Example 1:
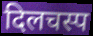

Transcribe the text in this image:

दिलचस्प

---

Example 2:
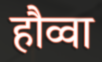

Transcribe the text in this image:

हौव्वा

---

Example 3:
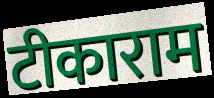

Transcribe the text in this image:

टीकाराम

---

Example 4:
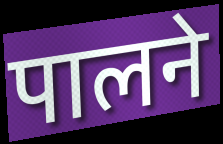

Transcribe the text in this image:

पालने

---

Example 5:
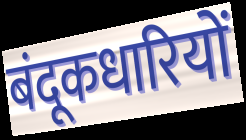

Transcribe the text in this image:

बंदूकधारियों